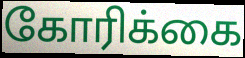
கோரிக்கை